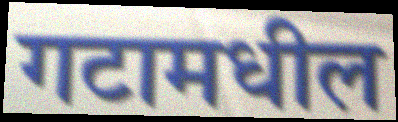
गटामधील